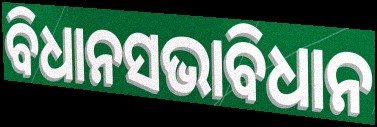
ବିଧାନସଭାବିଧାନ